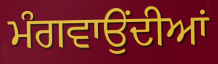
ਮੰਗਵਾਉਂਦੀਆਂ